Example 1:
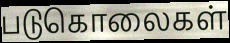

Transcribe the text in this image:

படுகொலைகள்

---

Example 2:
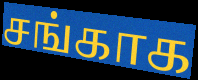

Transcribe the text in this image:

சங்காக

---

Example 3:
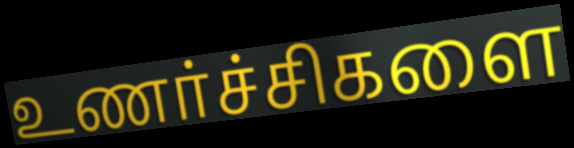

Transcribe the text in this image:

உணர்ச்சிகளை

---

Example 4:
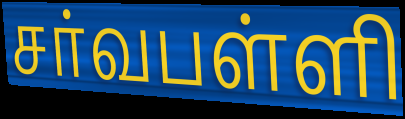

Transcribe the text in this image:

சர்வபள்ளி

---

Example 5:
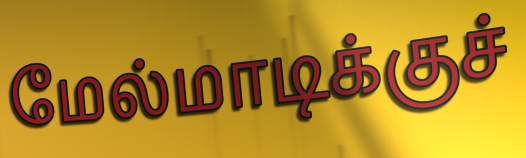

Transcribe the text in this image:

மேல்மாடிக்குச்